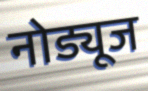
नोड्यूज